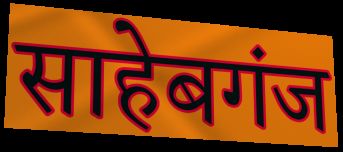
साहेबगंज